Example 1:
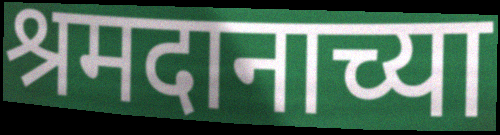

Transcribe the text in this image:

श्रमदानाच्या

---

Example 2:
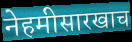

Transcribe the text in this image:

नेहमीसारखाच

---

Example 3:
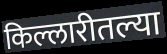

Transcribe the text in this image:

किल्लारीतल्या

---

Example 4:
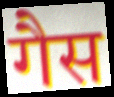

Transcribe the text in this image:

गैस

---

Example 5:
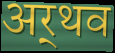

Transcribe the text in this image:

अर्थव